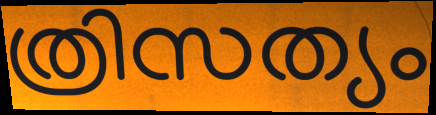
ത്രിസത്യം